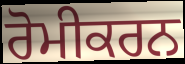
ਰੋਮੀਕਰਨ